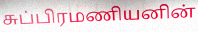
சுப்பிரமணியனின்